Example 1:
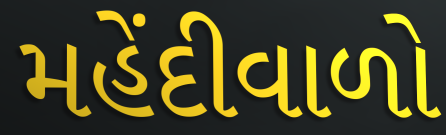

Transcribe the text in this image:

મહેંદીવાળો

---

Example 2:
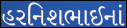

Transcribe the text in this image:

હરનિશભાઈનાં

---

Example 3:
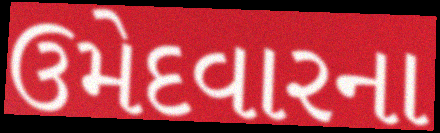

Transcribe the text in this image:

ઉમેદવારના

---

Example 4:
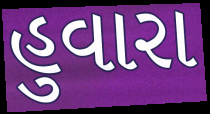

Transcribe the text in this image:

હુવારા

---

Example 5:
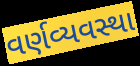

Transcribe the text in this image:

વર્ણવ્યવસ્થા